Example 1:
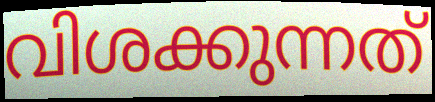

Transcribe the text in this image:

വിശക്കുന്നത്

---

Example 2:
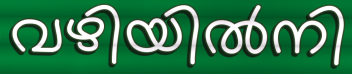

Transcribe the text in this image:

വഴിയിൽനി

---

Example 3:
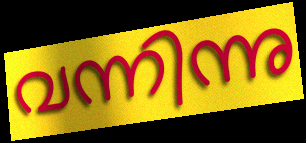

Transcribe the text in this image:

വന്നിന്നു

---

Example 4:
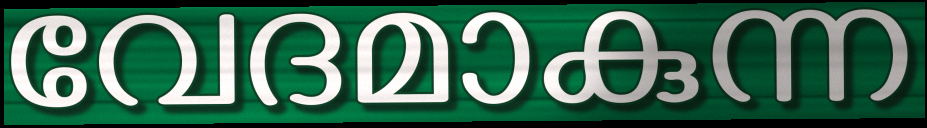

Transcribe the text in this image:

വേദമാകുന്ന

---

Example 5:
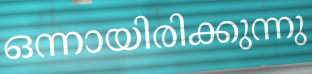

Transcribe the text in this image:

ഒന്നായിരിക്കുന്നു